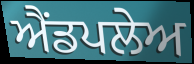
ਐਂਡਪਲੇਅ